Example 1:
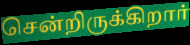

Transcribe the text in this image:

சென்றிருக்கிறார்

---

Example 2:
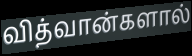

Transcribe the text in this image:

வித்வான்களால்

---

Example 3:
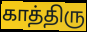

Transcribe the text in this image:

காத்திரு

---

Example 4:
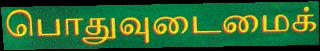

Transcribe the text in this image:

பொதுவுடைமைக்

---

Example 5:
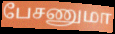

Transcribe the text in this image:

பேசணுமா